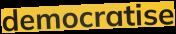
democratise